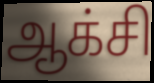
ஆக்சி